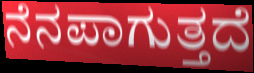
ನೆನಪಾಗುತ್ತದೆ